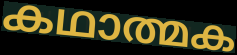
കഥാത്മക